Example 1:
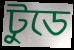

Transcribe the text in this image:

টুডে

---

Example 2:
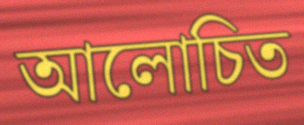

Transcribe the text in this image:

আলোচিত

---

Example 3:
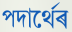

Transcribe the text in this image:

পদাৰ্থেৰ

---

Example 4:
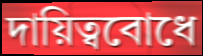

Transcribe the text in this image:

দায়িত্ববোধে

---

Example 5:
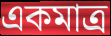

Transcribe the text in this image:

একমাত্ৰ